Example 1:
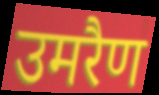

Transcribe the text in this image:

उमरैण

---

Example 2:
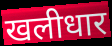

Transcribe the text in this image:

खलीधार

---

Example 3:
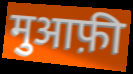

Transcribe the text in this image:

मुआफ़ी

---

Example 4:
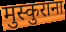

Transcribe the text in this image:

मुस्कुराना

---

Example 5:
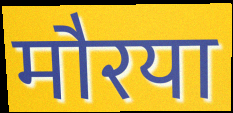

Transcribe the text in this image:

मौरया